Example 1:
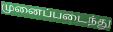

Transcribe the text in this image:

முனைப்படைந்து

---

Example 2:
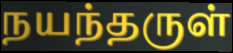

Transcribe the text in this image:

நயந்தருள்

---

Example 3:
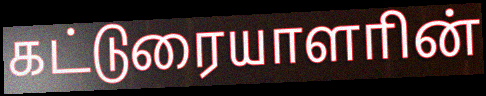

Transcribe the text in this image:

கட்டுரையாளரின்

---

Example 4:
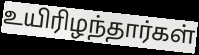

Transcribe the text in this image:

உயிரிழந்தார்கள்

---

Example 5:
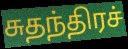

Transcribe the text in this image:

சுதந்திரச்